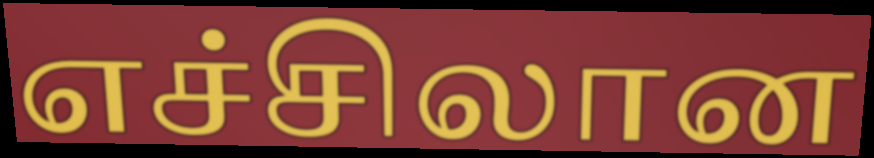
எச்சிலான